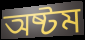
অষ্টম